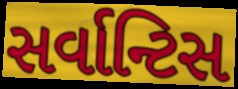
સર્વાન્ટિસ